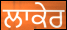
ਲਾਕੇਰ